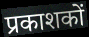
प्रकाशकों